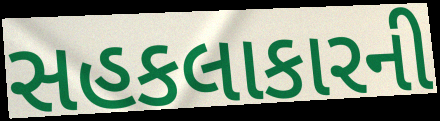
સહકલાકારની